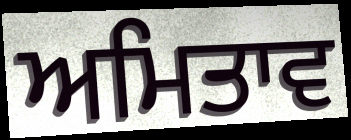
ਅਮਿਤਾਵ